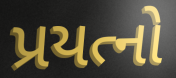
પ્રયત્નો